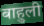
बाहुली